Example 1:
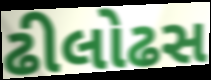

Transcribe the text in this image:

ઢીલોઢસ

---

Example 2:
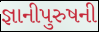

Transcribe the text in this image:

જ્ઞાનીપુરુષની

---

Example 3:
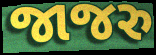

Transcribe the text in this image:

જાજરુ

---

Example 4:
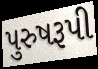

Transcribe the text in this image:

પુરુષરૂપી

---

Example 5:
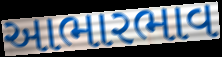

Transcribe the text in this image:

આભારભાવ